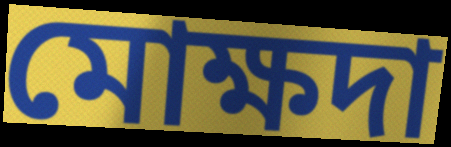
মোক্ষদা